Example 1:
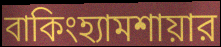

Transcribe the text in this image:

বাকিংহ্যামশায়ার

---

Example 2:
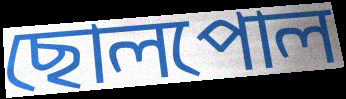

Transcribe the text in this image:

ছোলপোল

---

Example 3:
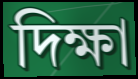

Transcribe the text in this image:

দিক্ষা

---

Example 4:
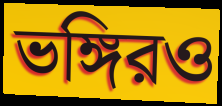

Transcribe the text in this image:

ভঙ্গিরও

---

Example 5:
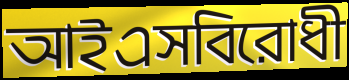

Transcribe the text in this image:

আইএসবিরোধী